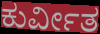
ಕುರ್ವೀತ